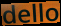
dello